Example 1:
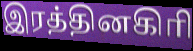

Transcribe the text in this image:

இரத்தினகிரி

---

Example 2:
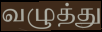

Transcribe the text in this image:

வழுத்து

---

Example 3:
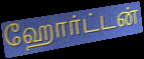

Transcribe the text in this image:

ஹோர்ட்டன்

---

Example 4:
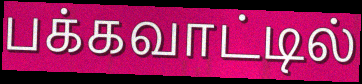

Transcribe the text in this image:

பக்கவாட்டில்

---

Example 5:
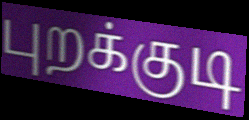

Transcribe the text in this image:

புறக்குடி